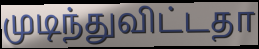
முடிந்துவிட்டதா